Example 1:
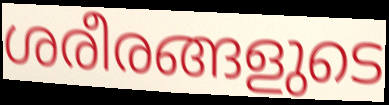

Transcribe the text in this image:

ശരീരങ്ങളുടെ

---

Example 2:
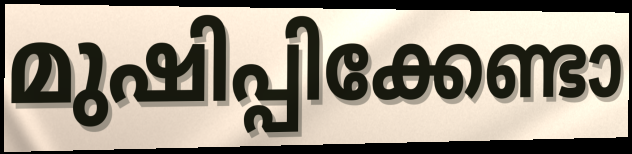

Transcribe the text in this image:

മുഷിപ്പിക്കേണ്ടാ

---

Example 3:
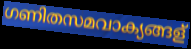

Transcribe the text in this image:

ഗണിതസമവാക്യങ്ങള്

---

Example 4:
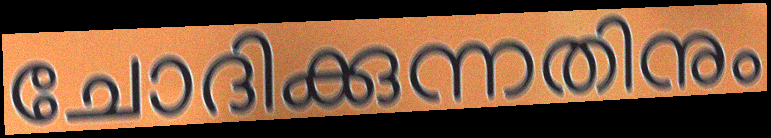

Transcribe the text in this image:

ചോദിക്കുന്നതിനും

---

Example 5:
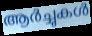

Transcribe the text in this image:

ആർച്ചുകൾ